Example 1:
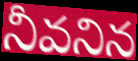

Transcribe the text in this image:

నీవనిన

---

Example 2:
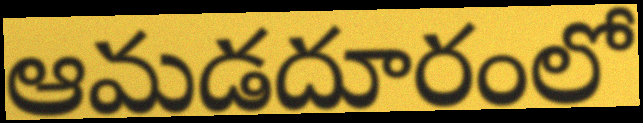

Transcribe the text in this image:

ఆమడదూరంలో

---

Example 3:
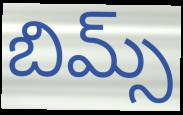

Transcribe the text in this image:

బిమ్స్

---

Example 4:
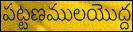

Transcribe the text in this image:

పట్టణములయొద్ద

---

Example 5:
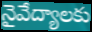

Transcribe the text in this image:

నైవేద్యాలకు